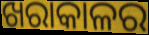
ଖରାକାଳର